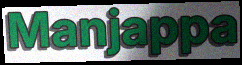
Manjappa